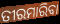
ତୀରମାରିବା